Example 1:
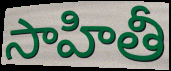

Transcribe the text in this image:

సాహితీ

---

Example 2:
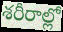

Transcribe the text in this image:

శరీరాల్లో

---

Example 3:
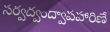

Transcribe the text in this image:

సర్వద్వంద్వాపహారిణే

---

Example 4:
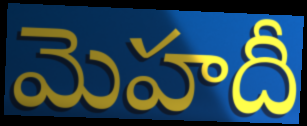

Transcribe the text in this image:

మెహదీ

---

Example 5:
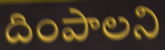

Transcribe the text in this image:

దింపాలని